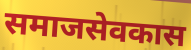
समाजसेवकास